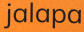
jalapa